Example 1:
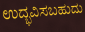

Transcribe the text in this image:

ಉದ್ಭವಿಸಬಹುದು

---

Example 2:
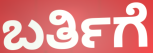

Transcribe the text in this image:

ಬರ್ತಿಗೆ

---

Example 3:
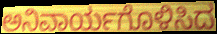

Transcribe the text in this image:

ಅನಿವಾರ್ಯಗೊಳಿಸಿದ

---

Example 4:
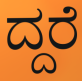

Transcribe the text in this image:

ದ್ದರೆ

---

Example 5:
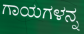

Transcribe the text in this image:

ಗಾಯಗಳನ್ನ